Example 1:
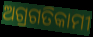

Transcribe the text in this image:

ଅଗ୍ରଗତିକାମୀ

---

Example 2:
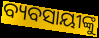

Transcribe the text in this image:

ବ୍ୟବସାୟୀଙ୍କୁ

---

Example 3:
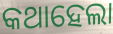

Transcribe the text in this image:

କଥାହେଲା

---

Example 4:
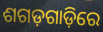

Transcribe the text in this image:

ଶଗଡ଼ଗାଡ଼ିରେ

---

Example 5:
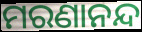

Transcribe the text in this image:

ମରଣାନନ୍ଦ